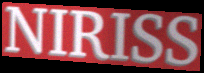
NIRISS